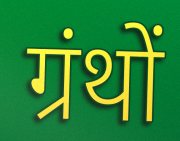
ग्रंथों